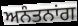
ਅਨੰਤਨਾਂਗ